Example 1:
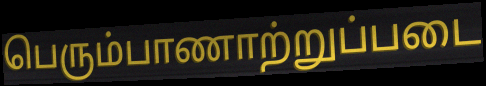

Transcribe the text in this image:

பெரும்பாணாற்றுப்படை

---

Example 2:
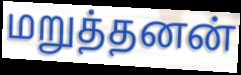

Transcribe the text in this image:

மறுத்தனன்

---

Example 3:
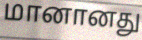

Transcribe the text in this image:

மானானது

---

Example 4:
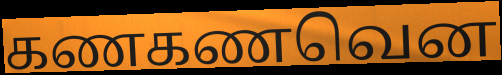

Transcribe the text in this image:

கணகணவென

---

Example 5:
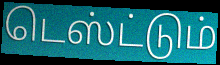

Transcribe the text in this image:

டெஸ்ட்டும்